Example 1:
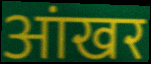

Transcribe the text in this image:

आंखर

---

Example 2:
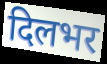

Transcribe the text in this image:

दिलभर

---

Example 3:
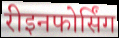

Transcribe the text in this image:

रीइनफोर्सिंग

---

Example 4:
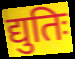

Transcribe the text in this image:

द्युतिः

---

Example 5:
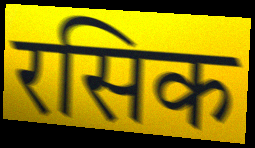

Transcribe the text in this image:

रसिक